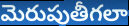
మెరుపుతీగలా